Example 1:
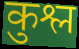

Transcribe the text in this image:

कुश्ल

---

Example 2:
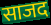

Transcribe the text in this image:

साजद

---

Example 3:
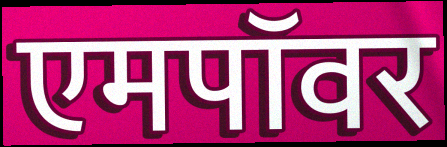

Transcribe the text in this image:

एमपॉवर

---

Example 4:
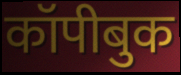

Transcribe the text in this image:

कॉपीबुक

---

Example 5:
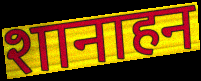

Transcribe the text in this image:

शानाहन